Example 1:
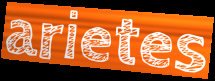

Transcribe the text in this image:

arietes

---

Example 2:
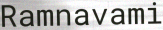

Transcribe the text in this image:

Ramnavami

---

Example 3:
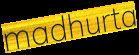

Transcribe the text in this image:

madhurta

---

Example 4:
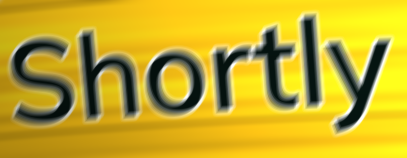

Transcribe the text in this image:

Shortly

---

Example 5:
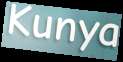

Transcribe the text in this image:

Kunya